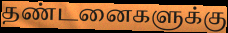
தண்டனைகளுக்கு